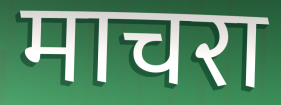
माचरा